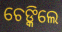
ଚେଙ୍କିଲେ